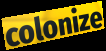
colonize